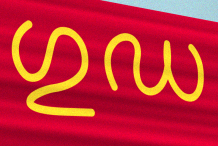
ഗുഡ